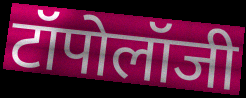
टॉपोलॉजी